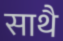
साथै